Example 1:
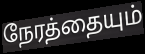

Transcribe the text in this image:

நேரத்தையும்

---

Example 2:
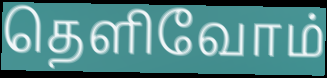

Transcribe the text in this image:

தெளிவோம்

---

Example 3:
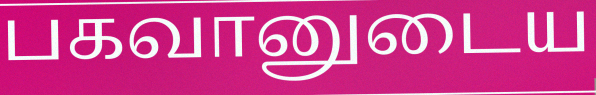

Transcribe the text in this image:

பகவானுடைய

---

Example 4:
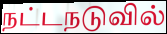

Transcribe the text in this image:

நட்டநடுவில்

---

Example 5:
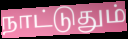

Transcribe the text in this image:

நாட்டுதும்